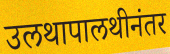
उलथापालथीनंतर